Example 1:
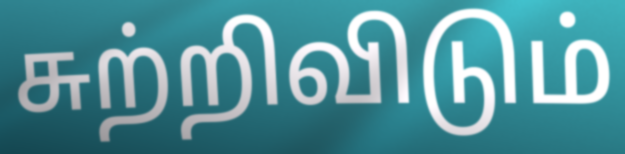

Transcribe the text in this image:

சுற்றிவிடும்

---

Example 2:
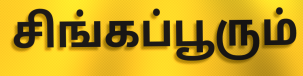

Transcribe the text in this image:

சிங்கப்பூரும்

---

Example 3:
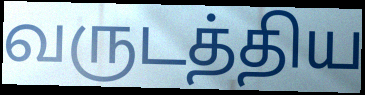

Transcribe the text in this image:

வருடத்திய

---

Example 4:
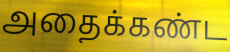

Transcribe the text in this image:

அதைக்கண்ட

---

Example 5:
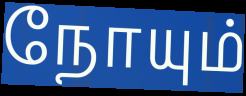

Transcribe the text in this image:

நோயும்